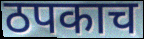
ठपकाच